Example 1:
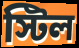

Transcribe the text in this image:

স্টিল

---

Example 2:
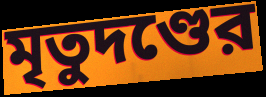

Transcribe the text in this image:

মৃতুদণ্ডের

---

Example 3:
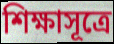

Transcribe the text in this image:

শিক্ষাসূত্রে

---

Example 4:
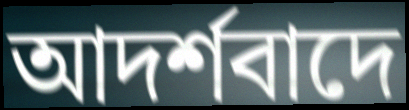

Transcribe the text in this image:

আদর্শবাদে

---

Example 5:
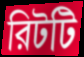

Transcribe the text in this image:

রিটটি